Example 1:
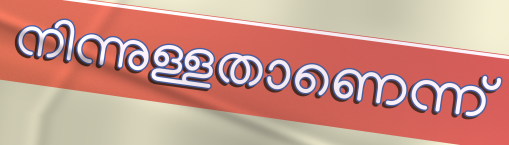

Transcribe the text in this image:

നിന്നുള്ളതാണെന്ന്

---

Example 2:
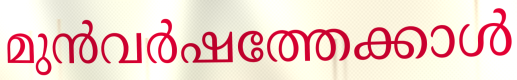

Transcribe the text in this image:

മുൻവർഷത്തേക്കാൾ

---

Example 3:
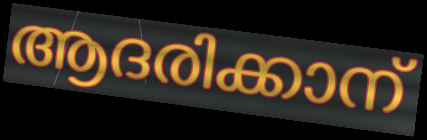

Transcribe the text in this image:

ആദരിക്കാന്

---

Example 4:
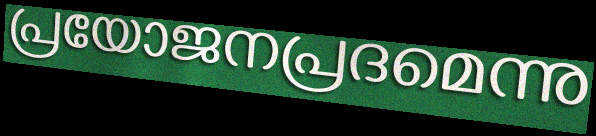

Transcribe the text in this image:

പ്രയോജനപ്രദമെന്നു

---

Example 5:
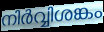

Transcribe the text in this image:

നിർവ്വിശങ്കം